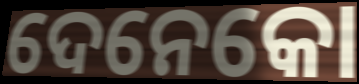
ଦେନେକୋ